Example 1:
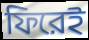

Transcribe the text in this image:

ফিরেই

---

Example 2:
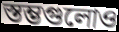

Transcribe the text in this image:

স্তম্ভগুলোও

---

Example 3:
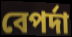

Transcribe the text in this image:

বেপর্দা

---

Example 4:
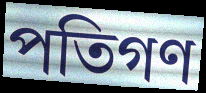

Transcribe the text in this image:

পতিগণ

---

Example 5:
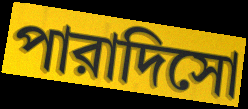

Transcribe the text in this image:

পারাদিসো